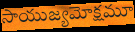
సాయుజ్యమోక్షమూ